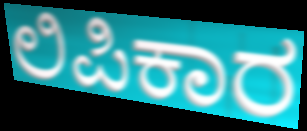
ಲಿಪಿಕಾರ